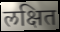
लक्षित